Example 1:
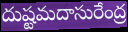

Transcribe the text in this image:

దుష్టమదాసురేంద్ర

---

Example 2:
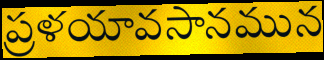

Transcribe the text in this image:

ప్రళయావసానమున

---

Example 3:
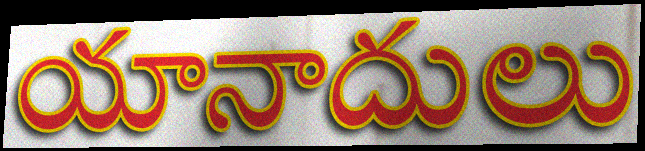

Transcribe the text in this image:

యానాదులు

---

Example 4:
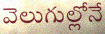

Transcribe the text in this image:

వెలుగుల్లోనే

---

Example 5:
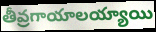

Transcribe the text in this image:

తీవ్రగాయాలయ్యాయి